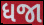
ધજા